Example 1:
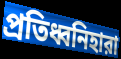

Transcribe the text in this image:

প্রতিধ্বনিহারা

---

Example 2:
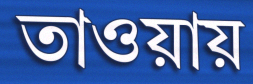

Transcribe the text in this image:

তাওয়ায়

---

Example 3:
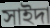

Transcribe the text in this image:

সাইদা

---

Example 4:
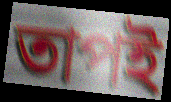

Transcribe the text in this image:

তাপই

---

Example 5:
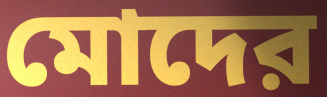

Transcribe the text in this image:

মোদের